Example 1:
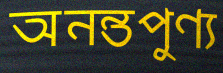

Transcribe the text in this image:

অনন্তপুণ্য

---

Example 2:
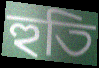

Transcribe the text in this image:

হুতি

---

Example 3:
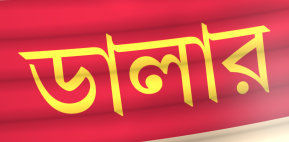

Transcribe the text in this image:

ডালার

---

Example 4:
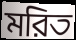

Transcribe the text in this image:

মরিত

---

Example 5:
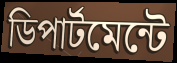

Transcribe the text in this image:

ডিপার্টমেন্টে